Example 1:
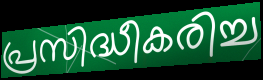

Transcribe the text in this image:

പ്രസിദ്ധീകരിച്ച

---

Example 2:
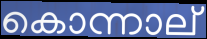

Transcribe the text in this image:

കൊന്നാല്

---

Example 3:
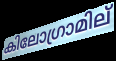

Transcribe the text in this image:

കിലോഗ്രാമില്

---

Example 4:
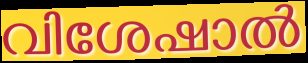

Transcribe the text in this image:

വിശേഷാൽ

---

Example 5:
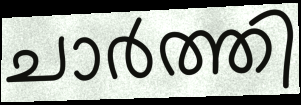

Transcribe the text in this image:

ചാർത്തി